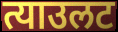
त्याउलट